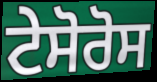
ਟੇਸੋਰੋਸ